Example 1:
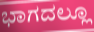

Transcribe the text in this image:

ಭಾಗದಲ್ಲೂ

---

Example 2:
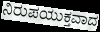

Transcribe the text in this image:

ನಿರುಪಯುಕ್ತವಾದ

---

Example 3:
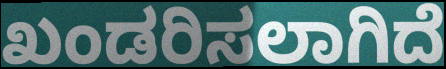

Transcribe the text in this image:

ಖಂಡರಿಸಲಾಗಿದೆ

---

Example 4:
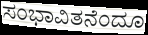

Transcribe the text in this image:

ಸಂಭಾವಿತನೆಂದೂ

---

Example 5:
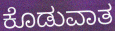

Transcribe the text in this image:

ಕೊಡುವಾತ